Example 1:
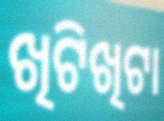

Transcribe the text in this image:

ଖିଟିଖିଟା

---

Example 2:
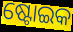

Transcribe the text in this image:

ଷ୍ଟୋଇକ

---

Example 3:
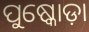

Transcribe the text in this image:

ପୁଷ୍କୋଡ଼ା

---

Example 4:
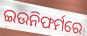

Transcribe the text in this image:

ଇଉନିଫର୍ମରେ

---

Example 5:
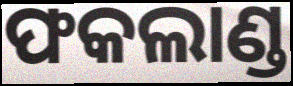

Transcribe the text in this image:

ଫକଲାଣ୍ଡ